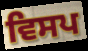
ਵਿਸਪ